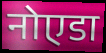
नोएडा